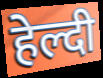
हेल्दी